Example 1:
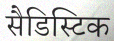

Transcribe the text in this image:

सैडिस्टिक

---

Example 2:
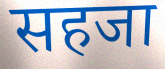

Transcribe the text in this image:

सहजा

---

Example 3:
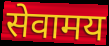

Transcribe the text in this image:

सेवामय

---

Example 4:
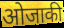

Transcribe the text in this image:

ओजाकी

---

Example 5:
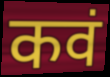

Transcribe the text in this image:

कवं